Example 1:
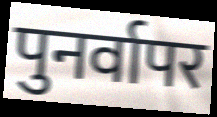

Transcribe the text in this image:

पुनर्वापर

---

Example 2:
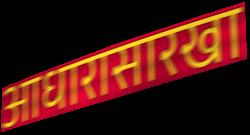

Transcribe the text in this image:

आधारासारखा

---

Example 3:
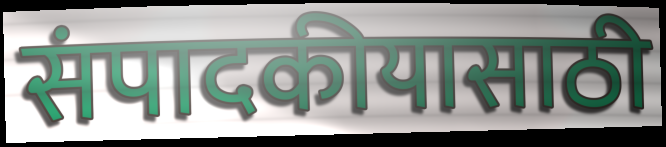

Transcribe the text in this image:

संपादकीयासाठी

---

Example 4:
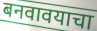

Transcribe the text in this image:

बनवावयाचा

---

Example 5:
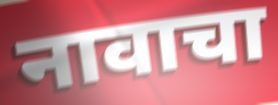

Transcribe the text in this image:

नावाचा